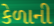
કેળાની